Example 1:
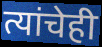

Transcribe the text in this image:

त्यांचेही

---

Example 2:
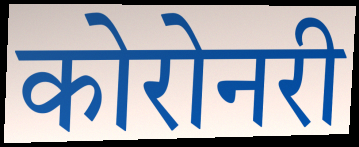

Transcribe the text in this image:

कोरोनरी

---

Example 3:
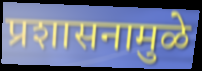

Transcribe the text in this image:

प्रशासनामुळे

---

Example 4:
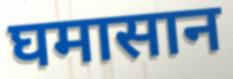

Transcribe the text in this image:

घमासान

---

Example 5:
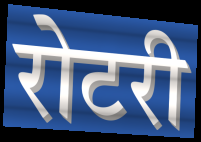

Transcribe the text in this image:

रोटरी